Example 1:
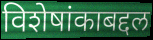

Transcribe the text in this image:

विशेषांकाबद्दल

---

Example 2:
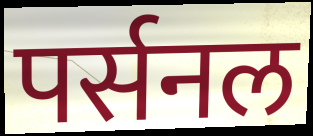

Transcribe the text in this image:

पर्सनल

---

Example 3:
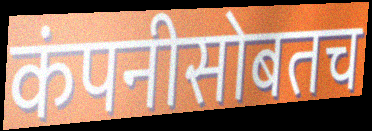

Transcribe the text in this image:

कंपनीसोबतच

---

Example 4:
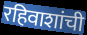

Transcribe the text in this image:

रहिवाशांची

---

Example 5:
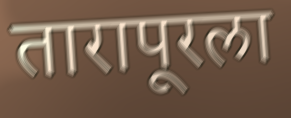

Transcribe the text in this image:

तारापूरला